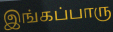
இங்கப்பாரு